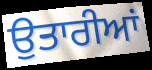
ਉਤਾਰੀਆਂ